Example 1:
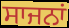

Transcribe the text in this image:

ਸਾਜਨਾਂ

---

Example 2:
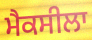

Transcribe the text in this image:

ਮੈਕਸੀਲਾ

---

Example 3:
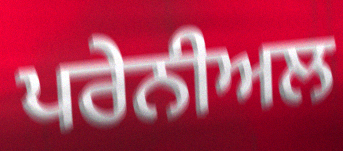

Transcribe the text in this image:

ਪਰੇਨੀਅਲ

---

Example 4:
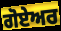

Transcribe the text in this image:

ਗੋਏਅਰ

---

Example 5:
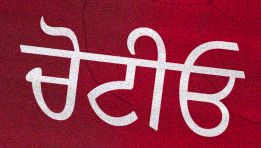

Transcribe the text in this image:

ਚੋਟੀਓ